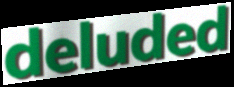
deluded